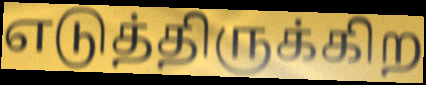
எடுத்திருக்கிற